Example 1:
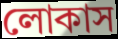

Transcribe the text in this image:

লোকাস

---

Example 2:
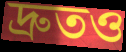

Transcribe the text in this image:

দ্রুতও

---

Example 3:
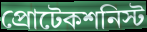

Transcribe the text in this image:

প্রোটেকশনিস্ট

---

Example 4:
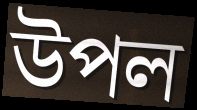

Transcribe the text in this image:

উপল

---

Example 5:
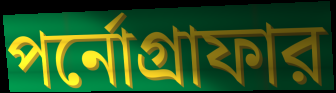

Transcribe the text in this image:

পর্নোগ্রাফার